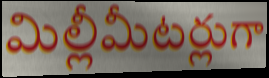
మిల్లీమీటర్లుగా